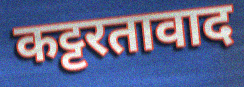
कट्टरतावाद